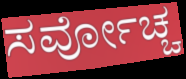
ಸರ್ವೋಚ್ಚ